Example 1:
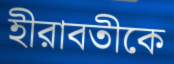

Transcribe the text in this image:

হীরাবতীকে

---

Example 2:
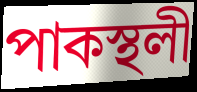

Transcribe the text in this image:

পাকস্থলী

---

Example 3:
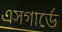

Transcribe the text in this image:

এসগার্ডে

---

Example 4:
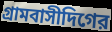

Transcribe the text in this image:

গ্রামবাসীদিগের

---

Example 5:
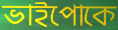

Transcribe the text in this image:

ভাইপোকে